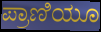
ಪ್ರಾಣಿಯೂ